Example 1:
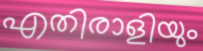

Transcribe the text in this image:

എതിരാളിയും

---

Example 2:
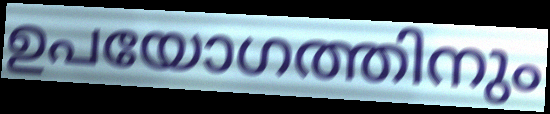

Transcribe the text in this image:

ഉപയോഗത്തിനും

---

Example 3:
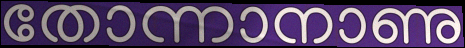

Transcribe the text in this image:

തോന്നാനാണു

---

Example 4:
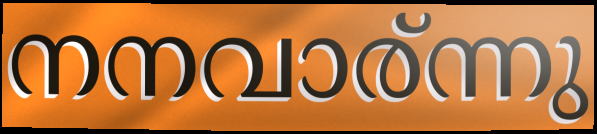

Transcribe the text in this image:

നനവാര്ന്നു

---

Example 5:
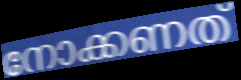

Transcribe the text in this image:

നോക്കണത്